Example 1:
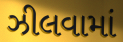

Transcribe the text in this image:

ઝીલવામાં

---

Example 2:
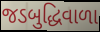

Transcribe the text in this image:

જડબુદ્ધિવાળા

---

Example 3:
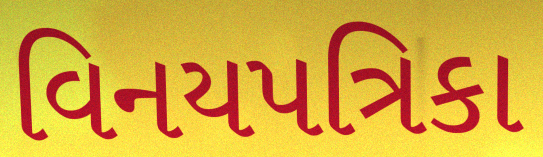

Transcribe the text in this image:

વિનયપત્રિકા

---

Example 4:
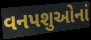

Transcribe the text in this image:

વનપશુઓનાં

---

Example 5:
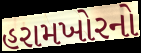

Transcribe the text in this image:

હરામખોરનો